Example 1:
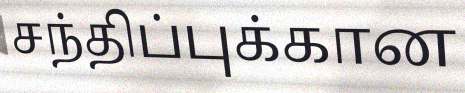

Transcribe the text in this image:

சந்திப்புக்கான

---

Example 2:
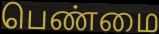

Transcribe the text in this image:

பெண்மை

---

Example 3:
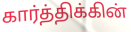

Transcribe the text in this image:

கார்த்திக்கின்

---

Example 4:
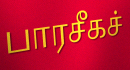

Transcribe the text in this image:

பாரசீகச்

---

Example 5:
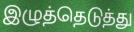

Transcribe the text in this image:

இழுத்தெடுத்து